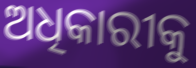
ଅଧିକାରୀକୁ